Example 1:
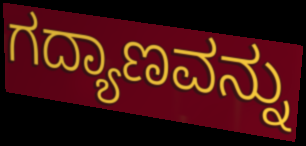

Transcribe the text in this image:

ಗದ್ಯಾಣವನ್ನು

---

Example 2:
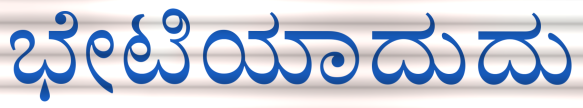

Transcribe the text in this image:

ಭೇಟಿಯಾದುದು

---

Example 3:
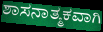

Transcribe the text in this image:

ಶಾಸನಾತ್ಮಕವಾಗಿ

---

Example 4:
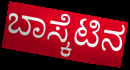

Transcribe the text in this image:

ಬಾಸ್ಕೆಟಿನ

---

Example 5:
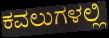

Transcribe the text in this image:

ಕವಲುಗಳಲ್ಲಿ